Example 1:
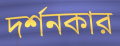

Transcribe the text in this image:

দর্শনকার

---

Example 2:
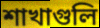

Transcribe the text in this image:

শাখাগুলি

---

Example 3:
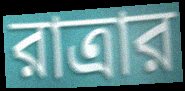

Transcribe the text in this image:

রাত্রার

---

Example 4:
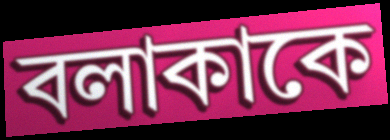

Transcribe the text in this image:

বলাকাকে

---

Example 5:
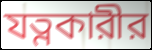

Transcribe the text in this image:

যত্নকারীর